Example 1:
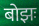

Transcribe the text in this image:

बोझः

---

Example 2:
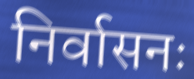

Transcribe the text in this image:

निर्वासनः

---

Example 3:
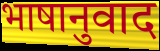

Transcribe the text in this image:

भाषानुवाद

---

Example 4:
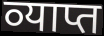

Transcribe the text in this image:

व्‍याप्‍त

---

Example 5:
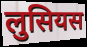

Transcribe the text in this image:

लुसियस